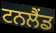
ਟਨਲੈਂਡ